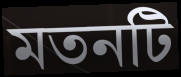
মতনটি